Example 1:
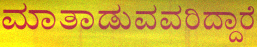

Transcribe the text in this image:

ಮಾತಾಡುವವರಿದ್ದಾರೆ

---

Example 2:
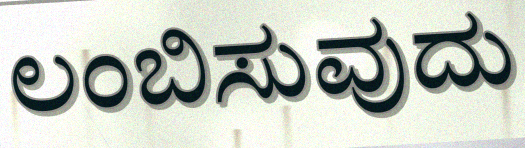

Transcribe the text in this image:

ಲಂಬಿಸುವುದು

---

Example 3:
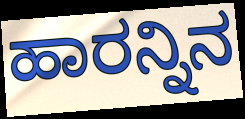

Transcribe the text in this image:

ಹಾರನ್ನಿನ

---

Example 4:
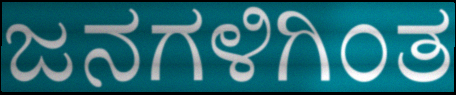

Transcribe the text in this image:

ಜನಗಳಿಗಿಂತ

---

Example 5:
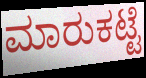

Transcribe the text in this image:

ಮಾರುಕಟ್ಟೆ